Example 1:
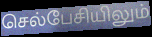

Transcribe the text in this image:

செல்பேசியிலும்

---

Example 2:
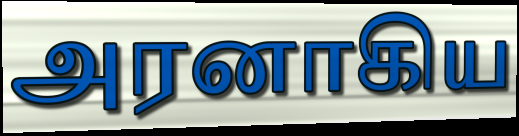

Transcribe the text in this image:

அரனாகிய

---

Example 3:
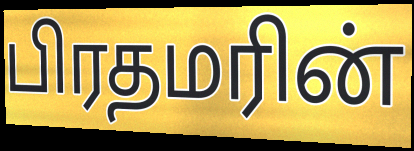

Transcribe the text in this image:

பிரதமரின்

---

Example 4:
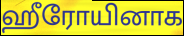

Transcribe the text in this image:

ஹீரோயினாக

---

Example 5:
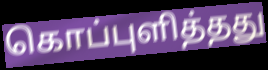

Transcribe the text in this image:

கொப்புளித்தது